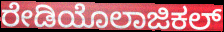
ರೇಡಿಯೊಲಾಜಿಕಲ್